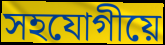
সহযোগীয়ে